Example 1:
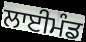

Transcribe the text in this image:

ਲਾਈਮੰਡ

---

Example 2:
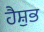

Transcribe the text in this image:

ਹੈਸ਼ੁਭ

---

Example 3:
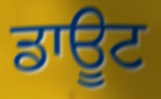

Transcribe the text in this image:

ਡਾਊਟ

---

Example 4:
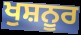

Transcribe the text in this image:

ਖੁਸ਼ਨੂਰ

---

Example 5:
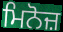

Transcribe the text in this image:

ਮਿਨੋਜ਼